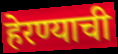
हेरण्याची